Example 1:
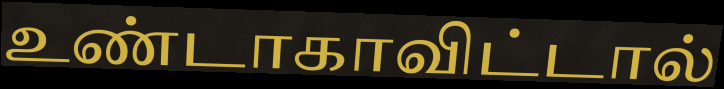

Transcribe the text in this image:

உண்டாகாவிட்டால்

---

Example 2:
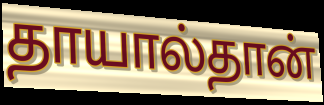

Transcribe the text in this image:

தாயால்தான்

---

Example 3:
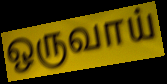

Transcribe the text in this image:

ஒருவாய்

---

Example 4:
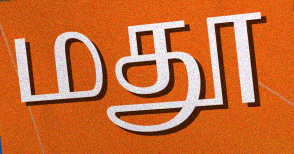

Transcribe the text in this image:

மதூ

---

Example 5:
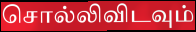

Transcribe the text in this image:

சொல்லிவிடவும்